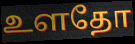
உளதோ